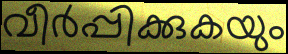
വീർപ്പിക്കുകയും